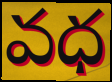
వధ